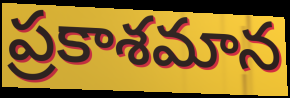
ప్రకాశమాన